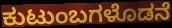
ಕುಟುಂಬಗಳೊಡನೆ